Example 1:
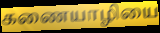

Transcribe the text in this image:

கணையாழியை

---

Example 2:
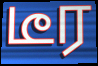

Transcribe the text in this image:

டீர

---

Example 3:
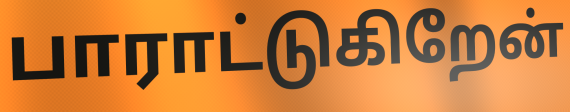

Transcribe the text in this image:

பாராட்டுகிறேன்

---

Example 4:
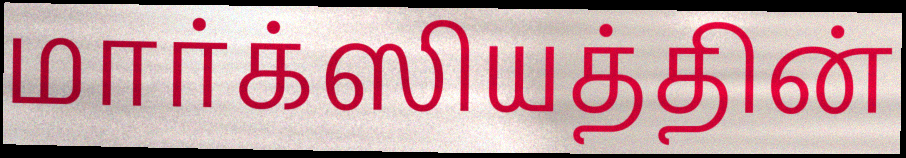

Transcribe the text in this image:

மார்க்ஸியத்தின்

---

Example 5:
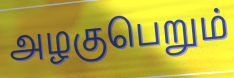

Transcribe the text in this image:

அழகுபெறும்